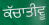
ਕੱਚਾਤੀਵੂ